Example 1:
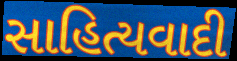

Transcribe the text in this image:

સાહિત્યવાદી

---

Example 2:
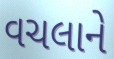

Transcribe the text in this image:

વચલાને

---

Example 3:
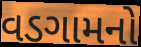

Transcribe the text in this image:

વડગામનો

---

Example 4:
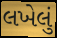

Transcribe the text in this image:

લખેલું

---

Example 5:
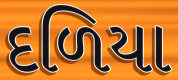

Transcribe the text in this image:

દળિયા